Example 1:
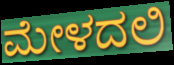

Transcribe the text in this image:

ಮೇಳದಲಿ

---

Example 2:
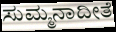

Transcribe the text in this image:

ಸುಮ್ಮನಾದೀತೆ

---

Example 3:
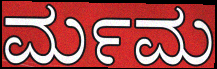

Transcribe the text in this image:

ರ್ಮಮ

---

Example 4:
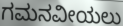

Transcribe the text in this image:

ಗಮನವೀಯಲು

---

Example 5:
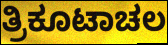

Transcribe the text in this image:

ತ್ರಿಕೂಟಾಚಲ